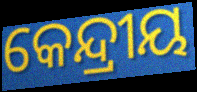
କେନ୍ଦ୍ରୀୟ